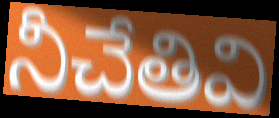
నీచేతివి